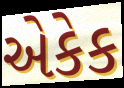
એકેક